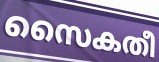
സൈകതീ